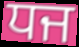
ਧਜ